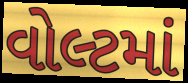
વોલ્ટમાં